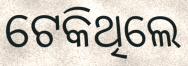
ଟେକିଥିଲେ